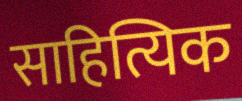
साहित्यिक